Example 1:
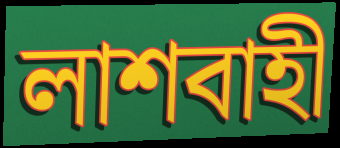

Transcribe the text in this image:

লাশবাহী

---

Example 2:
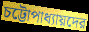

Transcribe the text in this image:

চট্টোপাধ্যায়দের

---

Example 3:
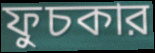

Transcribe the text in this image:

ফুচকার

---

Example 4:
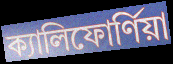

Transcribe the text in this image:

ক্যালিফোর্ণিয়া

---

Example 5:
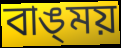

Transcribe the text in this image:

বাঙ্‌ময়